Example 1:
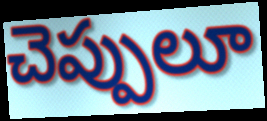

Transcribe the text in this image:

చెప్పులూ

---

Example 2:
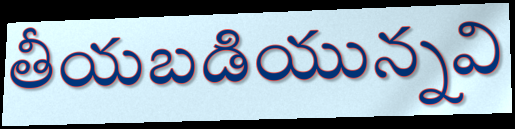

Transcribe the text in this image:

తీయబడియున్నవి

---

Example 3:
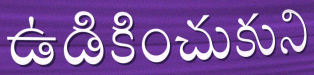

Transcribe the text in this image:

ఉడికించుకుని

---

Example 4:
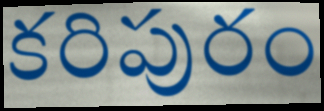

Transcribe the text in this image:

కరిపురం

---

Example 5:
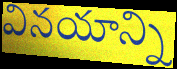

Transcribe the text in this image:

వినయాన్ని